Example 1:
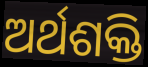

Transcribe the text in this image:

ଅର୍ଥଶକ୍ତି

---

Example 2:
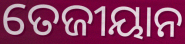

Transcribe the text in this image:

ତେଜୀୟାନ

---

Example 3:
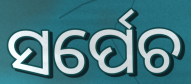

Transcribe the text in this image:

ସର୍ପେଚ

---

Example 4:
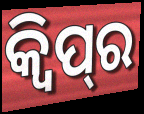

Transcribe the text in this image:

କ୍ଵିପ୍‌ର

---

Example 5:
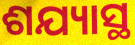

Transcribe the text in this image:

ଶଯ୍ୟାସ୍ଥ